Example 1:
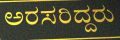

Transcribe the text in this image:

ಅರಸರಿದ್ದರು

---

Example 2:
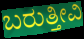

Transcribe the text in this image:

ಬರುತ್ತೀವಿ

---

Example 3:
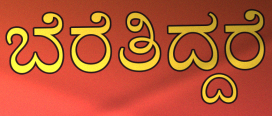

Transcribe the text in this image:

ಬೆರೆತಿದ್ದರೆ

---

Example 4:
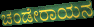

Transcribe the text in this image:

ಚಂಡೇರಾಯನ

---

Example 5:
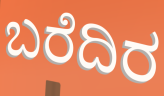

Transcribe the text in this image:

ಬರೆದಿರ